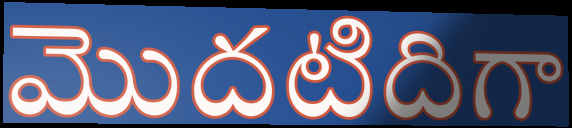
మొదటిదిగా